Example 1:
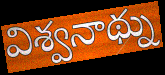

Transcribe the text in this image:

విశ్వనాథ్ను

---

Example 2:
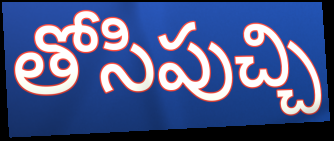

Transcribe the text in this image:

తోసిపుచ్చి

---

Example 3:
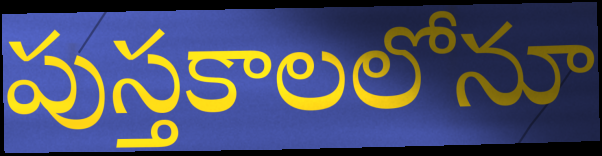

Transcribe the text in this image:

పుస్తకాలలోనూ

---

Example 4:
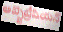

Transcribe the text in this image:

ఆబ్స్టెట్రీషియన్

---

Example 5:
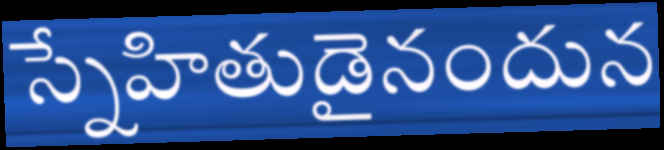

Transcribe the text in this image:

స్నేహితుడైనందున